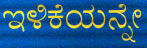
ಇಳಿಕೆಯನ್ನೇ